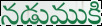
నడుముకి